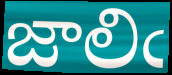
జాలిఁ